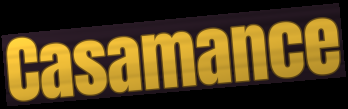
Casamance